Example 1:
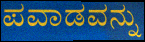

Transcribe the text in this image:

ಪವಾಡವನ್ನು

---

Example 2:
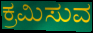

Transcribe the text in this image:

ಕ್ರಮಿಸುವ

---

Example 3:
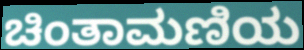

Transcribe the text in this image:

ಚಿಂತಾಮಣಿಯ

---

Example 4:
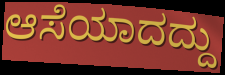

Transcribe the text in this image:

ಆಸೆಯಾದದ್ದು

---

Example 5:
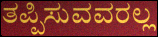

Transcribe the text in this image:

ತಪ್ಪಿಸುವವರಲ್ಲ